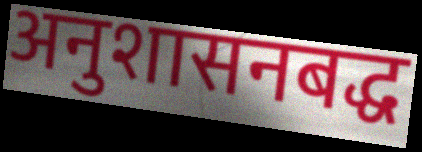
अनुशासनबद्ध